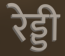
रेड्डी